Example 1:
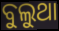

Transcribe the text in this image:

ବୁଲୁଥା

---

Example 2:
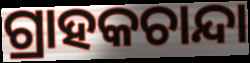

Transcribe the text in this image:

ଗ୍ରାହକଚାନ୍ଦା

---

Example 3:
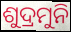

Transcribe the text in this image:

ଶୁଦ୍ରମୁନି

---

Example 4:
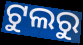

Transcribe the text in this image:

ଟୁଲରୁ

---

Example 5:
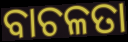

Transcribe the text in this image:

ବାଚଳତା